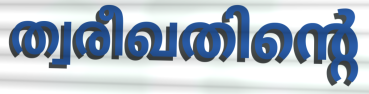
ത്വരീഖതിന്റെ